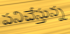
పనిచేస్తున్న